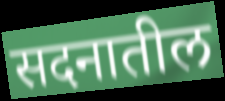
सदनातील